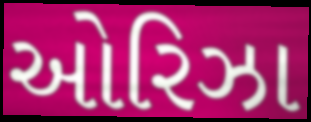
ઓરિઝા